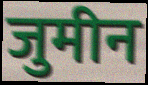
जुमीन